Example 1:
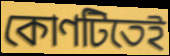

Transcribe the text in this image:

কোণটিতেই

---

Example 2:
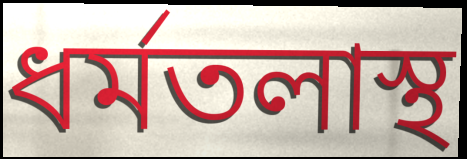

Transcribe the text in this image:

ধর্মতলাস্থ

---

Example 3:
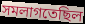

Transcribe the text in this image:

সমলাগতেছিল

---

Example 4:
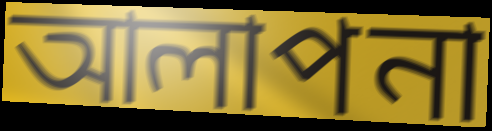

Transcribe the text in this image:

আলাপনা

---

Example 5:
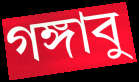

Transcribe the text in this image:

গঙ্গাবু